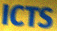
ICTS